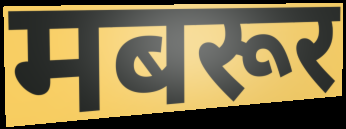
मबरूर